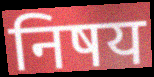
निषय